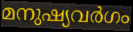
മനുഷ്യവർഗം